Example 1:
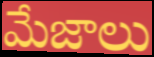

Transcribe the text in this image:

మేజాలు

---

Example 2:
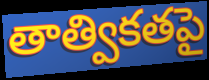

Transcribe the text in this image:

తాత్వికతపై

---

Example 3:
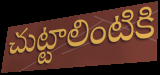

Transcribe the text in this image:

చుట్టాలింటికి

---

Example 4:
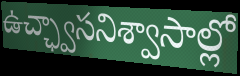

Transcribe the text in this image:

ఉచ్ఛ్వాసనిశ్వాసాల్లో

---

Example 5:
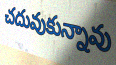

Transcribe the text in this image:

చదువుకున్నావు